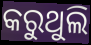
କରୁଥୁଲି